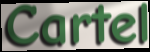
Cartel